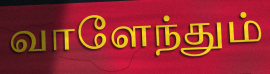
வாளேந்தும்